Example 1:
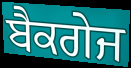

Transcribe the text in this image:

ਬੈਕਗੇਜ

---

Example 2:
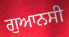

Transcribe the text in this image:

ਗੁਆਨਸੀ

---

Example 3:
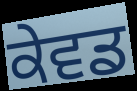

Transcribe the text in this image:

ਕੇਵਡ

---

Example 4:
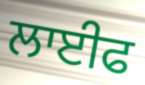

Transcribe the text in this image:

ਲਾਈਫ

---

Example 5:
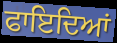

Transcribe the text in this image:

ਫਾਇਦਿਆਂ